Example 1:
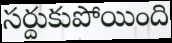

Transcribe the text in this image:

సర్దుకుపోయింది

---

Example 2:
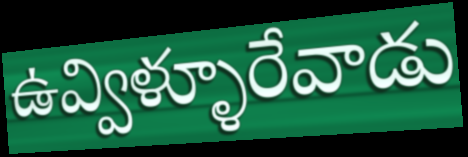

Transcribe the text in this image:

ఉవ్విళ్ళూరేవాడు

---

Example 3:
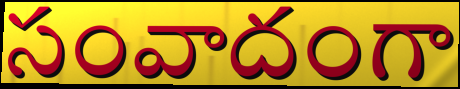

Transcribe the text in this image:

సంవాదంగా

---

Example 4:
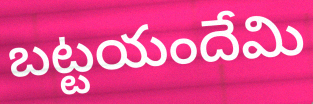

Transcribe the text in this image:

బట్టయందేమి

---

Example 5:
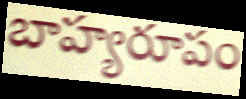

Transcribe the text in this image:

బాహ్యరూపం